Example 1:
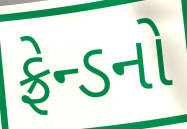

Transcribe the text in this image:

ફ્રેન્ડનો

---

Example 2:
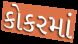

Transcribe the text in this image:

કોકરમાં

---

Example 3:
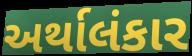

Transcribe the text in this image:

અર્થાલંકાર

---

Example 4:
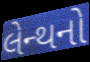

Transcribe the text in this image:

લેન્થનો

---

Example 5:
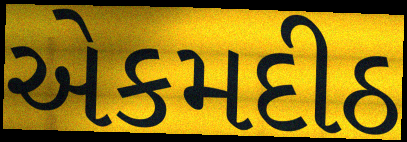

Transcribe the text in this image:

એકમદીઠ